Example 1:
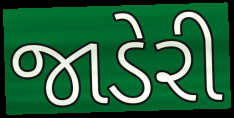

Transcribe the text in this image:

જાડેરી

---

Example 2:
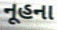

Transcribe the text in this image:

નૂહના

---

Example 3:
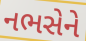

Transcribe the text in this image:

નભસેને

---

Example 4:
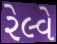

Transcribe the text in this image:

રેલ્વે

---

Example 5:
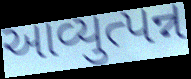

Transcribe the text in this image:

આવ્યુત્પન્ન